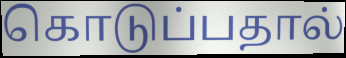
கொடுப்பதால்